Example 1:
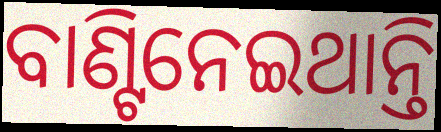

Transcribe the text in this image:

ବାଣ୍ଟିନେଇଥାନ୍ତି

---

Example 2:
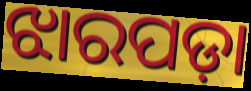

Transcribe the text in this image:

ଝାରପଡ଼ା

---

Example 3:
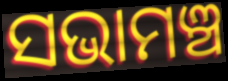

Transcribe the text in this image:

ସଭାମଞ୍ଚ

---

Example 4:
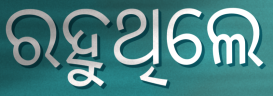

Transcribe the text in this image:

ରହୁଥିଲେ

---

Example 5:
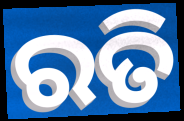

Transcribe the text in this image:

ରତି